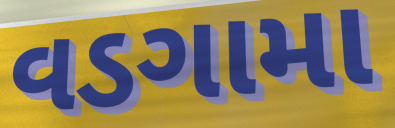
વડગામા